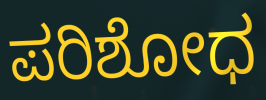
ಪರಿಶೋಧ